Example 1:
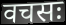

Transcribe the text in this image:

वचसः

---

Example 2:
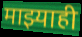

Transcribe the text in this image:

माझ्याही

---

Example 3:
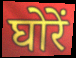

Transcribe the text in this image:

घोरें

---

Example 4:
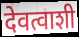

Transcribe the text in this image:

देवत्वाशी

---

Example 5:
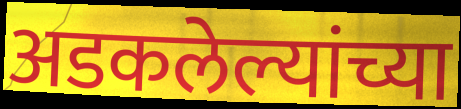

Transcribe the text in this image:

अडकलेल्यांच्या